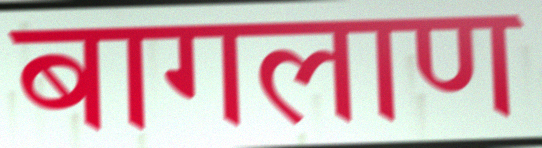
बागलाण